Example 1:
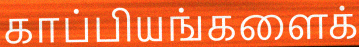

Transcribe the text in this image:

காப்பியங்களைக்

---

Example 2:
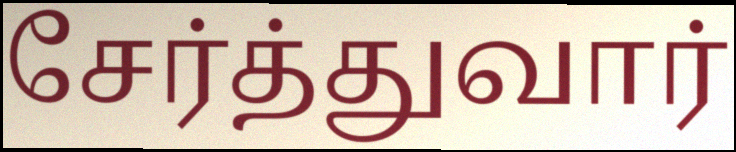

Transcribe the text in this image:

சேர்த்துவார்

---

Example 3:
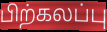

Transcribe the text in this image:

பிற்கலப்பு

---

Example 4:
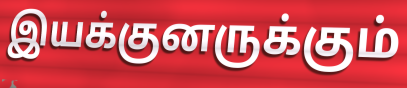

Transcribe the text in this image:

இயக்குனருக்கும்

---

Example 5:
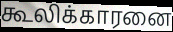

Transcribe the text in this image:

கூலிக்காரனை